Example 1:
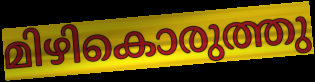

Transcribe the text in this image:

മിഴികൊരുത്തു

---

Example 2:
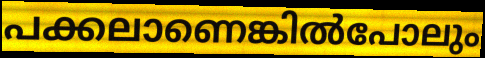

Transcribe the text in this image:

പക്കലാണെങ്കിൽപോലും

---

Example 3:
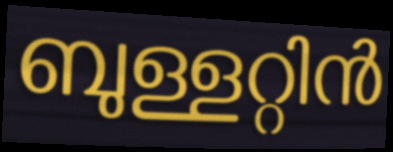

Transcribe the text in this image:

ബുള്ളറ്റിൻ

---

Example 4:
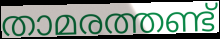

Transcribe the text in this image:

താമരത്തണ്ട്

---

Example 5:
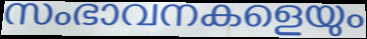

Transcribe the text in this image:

സംഭാവനകളെയും